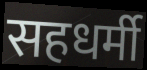
सहधर्मी